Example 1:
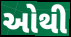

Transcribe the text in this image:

ઓથી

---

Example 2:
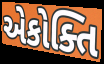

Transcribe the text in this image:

એકોક્તિ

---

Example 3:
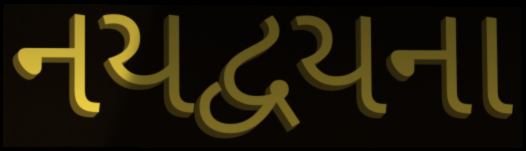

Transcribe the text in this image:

નયદ્વયના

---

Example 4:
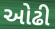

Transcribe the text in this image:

ઓઢી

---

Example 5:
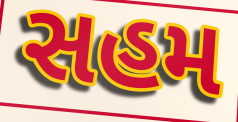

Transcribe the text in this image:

સહમ